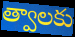
త్వాలకు